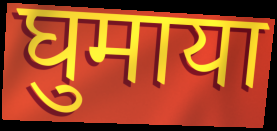
घुमाया